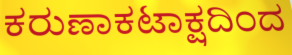
ಕರುಣಾಕಟಾಕ್ಷದಿಂದ